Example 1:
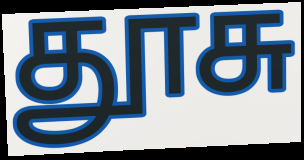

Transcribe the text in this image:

தூசு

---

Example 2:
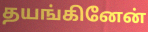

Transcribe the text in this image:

தயங்கினேன்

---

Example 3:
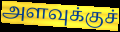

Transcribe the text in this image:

அளவுக்குச்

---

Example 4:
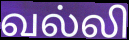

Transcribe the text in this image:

வல்லி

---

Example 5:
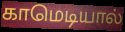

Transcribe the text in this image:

காமெடியால்